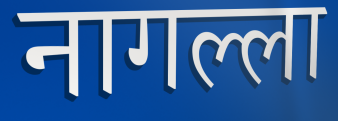
नागल्ला